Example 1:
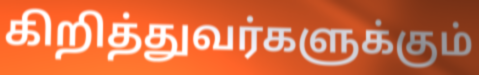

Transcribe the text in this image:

கிறித்துவர்களுக்கும்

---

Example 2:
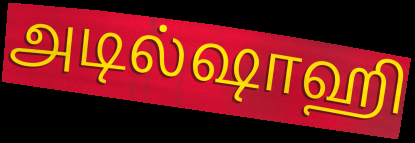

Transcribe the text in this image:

அடில்ஷாஹி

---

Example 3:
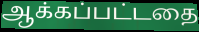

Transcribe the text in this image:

ஆக்கப்பட்டதை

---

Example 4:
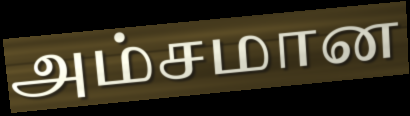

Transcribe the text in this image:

அம்சமான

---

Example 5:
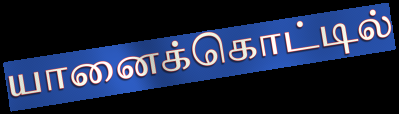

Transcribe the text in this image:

யானைக்கொட்டில்